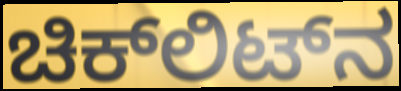
ಚಿಕ್‌ಲಿಟ್‌ನ